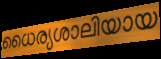
ധൈര്യശാലിയായ